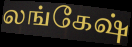
லங்கேஷ்